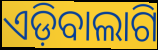
ଏଡ଼ିବାଲାଗି